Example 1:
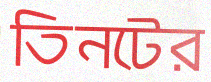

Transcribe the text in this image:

তিনটের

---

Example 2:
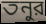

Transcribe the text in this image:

তনুর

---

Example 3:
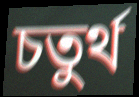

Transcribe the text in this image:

চতুর্থ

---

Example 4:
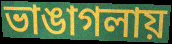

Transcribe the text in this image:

ভাঙাগলায়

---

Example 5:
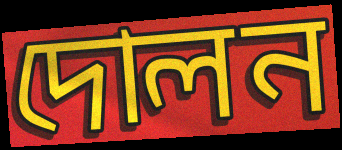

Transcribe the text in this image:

দোলন